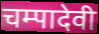
चम्पादेवी